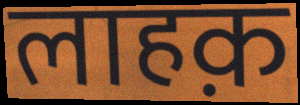
लाहक़